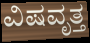
ವಿಷವೃತ್ತ